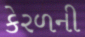
કેરળની